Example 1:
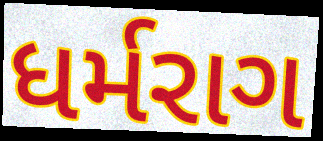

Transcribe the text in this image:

ધર્મરાગ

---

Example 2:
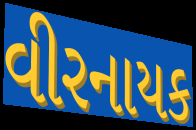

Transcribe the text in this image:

વીરનાયક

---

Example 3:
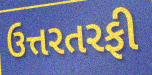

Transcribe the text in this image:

ઉત્તરતરફી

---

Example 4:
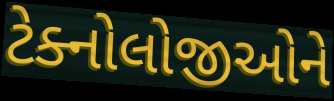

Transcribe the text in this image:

ટેક્નોલોજીઓને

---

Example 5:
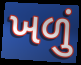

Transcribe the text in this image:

ખળું